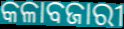
କଳାବଜାରୀ